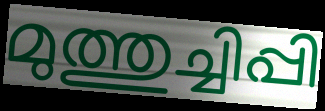
മുത്തുച്ചിപ്പി